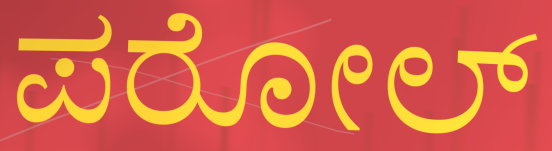
ಪರೋಲ್